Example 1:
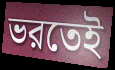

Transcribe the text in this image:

ভরতেই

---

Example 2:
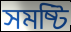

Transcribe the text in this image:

সমষ্টি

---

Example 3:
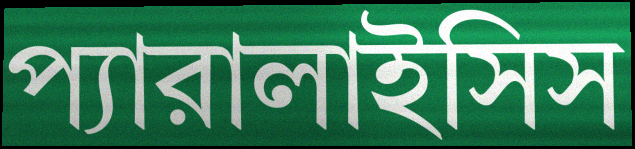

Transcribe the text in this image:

প্যারালাইসিস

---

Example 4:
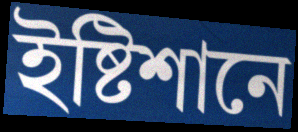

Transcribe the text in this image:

ইষ্টিশানে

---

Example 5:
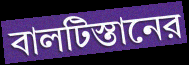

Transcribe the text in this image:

বালটিস্তানের